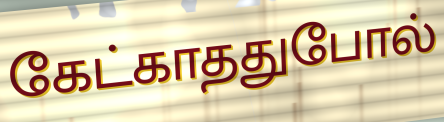
கேட்காததுபோல்